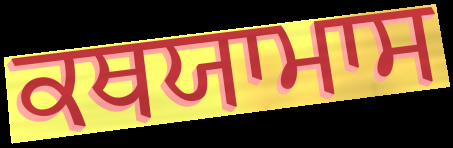
ਕਥਯਾਮਾਸ